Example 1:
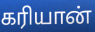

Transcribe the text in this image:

கரியான்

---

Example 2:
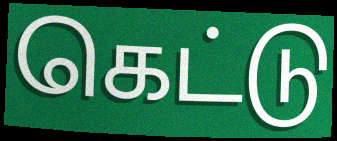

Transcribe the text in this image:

கெட்டு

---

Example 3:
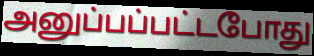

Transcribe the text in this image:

அனுப்பப்பட்டபோது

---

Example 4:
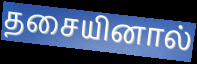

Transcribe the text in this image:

தசையினால்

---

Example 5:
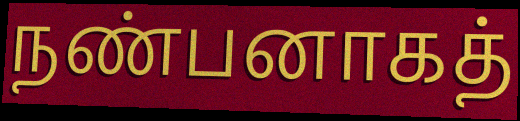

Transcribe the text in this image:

நண்பனாகத்